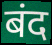
बंद